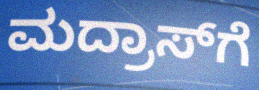
ಮದ್ರಾಸ್‍ಗೆ